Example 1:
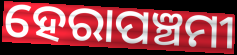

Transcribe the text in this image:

ହେରାପଞ୍ଚମୀ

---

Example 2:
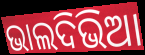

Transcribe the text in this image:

ଭାଲଦିଭିଆ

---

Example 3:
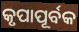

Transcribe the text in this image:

କୃପାପୂର୍ବକ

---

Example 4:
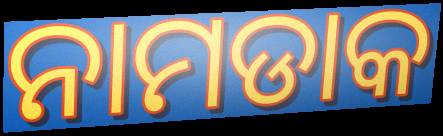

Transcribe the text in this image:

ନାମଡାକ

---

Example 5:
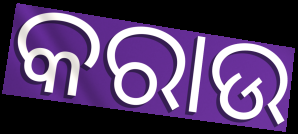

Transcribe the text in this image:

କରାଉ